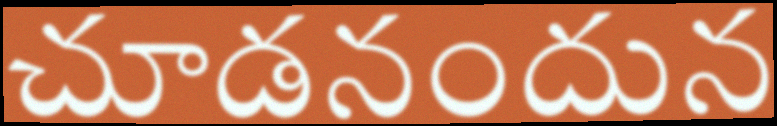
చూడనందున